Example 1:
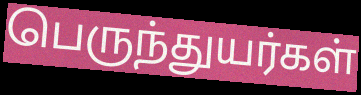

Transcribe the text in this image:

பெருந்துயர்கள்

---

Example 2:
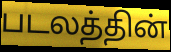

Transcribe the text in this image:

படலத்தின்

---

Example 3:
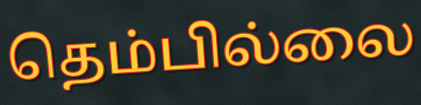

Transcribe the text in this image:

தெம்பில்லை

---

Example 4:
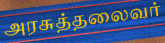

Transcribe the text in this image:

அரசுத்தலைவர்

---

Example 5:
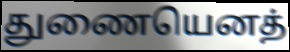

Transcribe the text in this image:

துணையெனத்